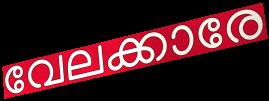
വേലക്കാരേ